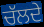
ਚੱਲਦੇ